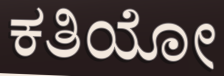
ಕತಿಯೋ